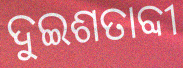
ଦୁଇଶତାବ୍ଦୀ